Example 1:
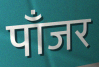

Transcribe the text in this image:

पाँजर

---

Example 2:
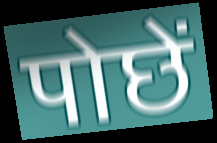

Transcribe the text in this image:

पोछें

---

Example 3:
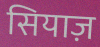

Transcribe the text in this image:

सियाज़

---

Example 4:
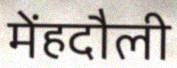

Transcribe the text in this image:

मेंहदौली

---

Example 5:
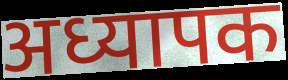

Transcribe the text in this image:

अध्यापक